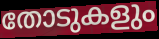
തോടുകളും